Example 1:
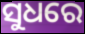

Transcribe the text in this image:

ସୁଧରେ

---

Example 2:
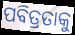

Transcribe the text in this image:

ପବିତ୍ରତାକୁ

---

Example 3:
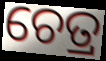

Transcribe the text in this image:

ଚେତ୍ର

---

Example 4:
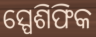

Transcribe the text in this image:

ସ୍ପେଶିଫିକ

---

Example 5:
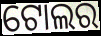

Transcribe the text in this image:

ଟୋଲର